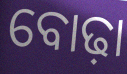
ବୋଢ଼ା